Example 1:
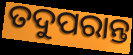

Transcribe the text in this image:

ତଦୁପରାନ୍ତ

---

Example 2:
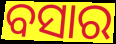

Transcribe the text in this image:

ବସାର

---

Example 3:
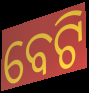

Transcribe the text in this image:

ବେଟି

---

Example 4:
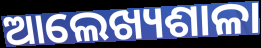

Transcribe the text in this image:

ଆଲେଖ୍ୟଶାଳା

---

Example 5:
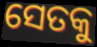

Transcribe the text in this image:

ସେତକୁ